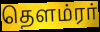
தௌம்ரர்